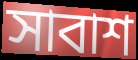
সাবাশ